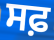
ਸਫ਼